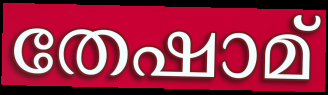
തേഷാമ്